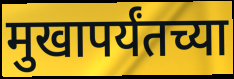
मुखापर्यंतच्या